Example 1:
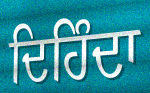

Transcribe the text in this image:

ਦਿਹਿੰਦਾ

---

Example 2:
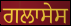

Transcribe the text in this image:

ਗਲਾਸੇਸ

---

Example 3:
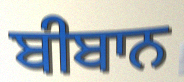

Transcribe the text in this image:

ਬੀਬਾਨ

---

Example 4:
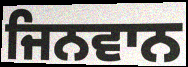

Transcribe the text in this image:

ਜਿਨਵਾਨ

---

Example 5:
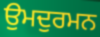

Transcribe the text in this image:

ਉਮਦੁਰਮਨ